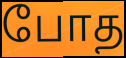
போத